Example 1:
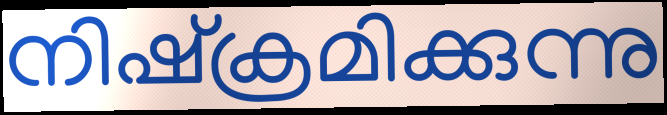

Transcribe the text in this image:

നിഷ്ക്രമിക്കുന്നു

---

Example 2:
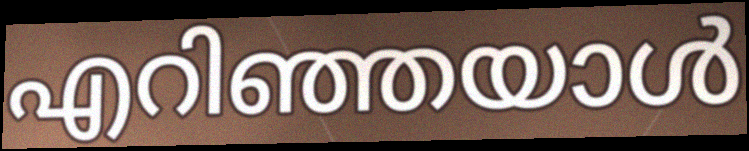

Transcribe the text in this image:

എറിഞ്ഞയാൾ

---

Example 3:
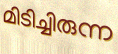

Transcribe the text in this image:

മിടിച്ചിരുന്ന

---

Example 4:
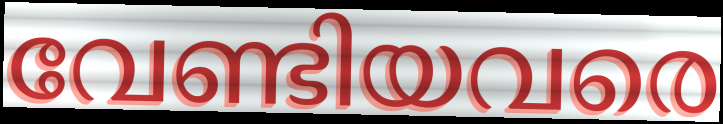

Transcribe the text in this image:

വേണ്ടിയവരെ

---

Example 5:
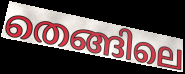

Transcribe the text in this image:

തെങ്ങിലെ